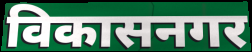
विकासनगर